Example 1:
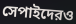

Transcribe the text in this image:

সেপাইদেরও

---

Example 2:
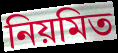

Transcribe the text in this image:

নিয়মিত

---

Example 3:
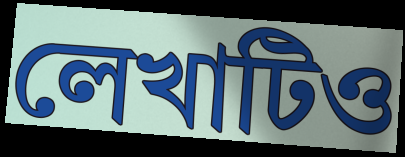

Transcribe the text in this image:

লেখাটিও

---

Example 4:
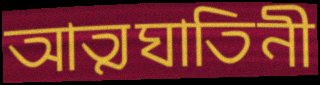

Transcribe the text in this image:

আত্মঘাতিনী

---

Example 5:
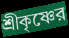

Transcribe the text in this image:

শ্রীকৃষ্ণের